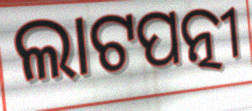
ଲାଟପତ୍ନୀ